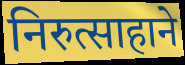
निरुत्साहाने